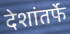
देशांतर्फे